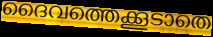
ദൈവത്തെക്കൂടാതെ